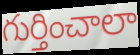
గుర్తించాలా